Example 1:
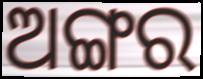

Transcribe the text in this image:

ଅଙ୍ଗର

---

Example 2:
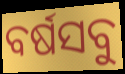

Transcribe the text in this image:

ବର୍ଷସବୁ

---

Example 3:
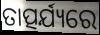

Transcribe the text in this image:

ତାତ୍ପର୍ଯ୍ୟରେ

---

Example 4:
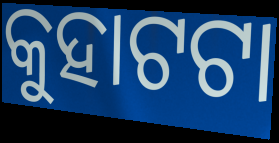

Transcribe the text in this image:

କୁହାଟଟା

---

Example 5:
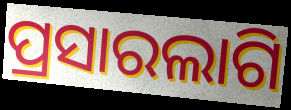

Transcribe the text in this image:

ପ୍ରସାରଲାଗି